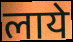
लाये